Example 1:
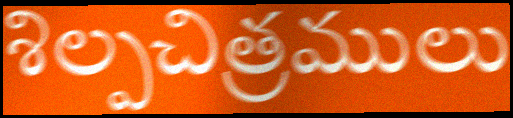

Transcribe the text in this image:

శిల్పచిత్రములు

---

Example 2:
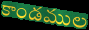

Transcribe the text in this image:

కాండముల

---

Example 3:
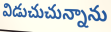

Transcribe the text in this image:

విడుచుచున్నాను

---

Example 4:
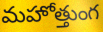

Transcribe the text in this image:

మహోత్తుంగ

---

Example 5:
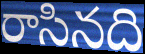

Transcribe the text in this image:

రాసినది